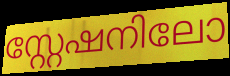
സ്റ്റേഷനിലോ